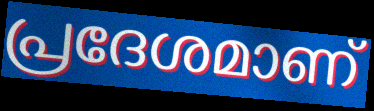
പ്രദേശമാണ്